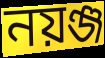
নয়ঞ্জ